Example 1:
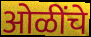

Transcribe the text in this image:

ओळींचे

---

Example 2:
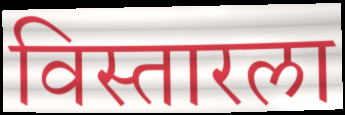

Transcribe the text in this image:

विस्तारला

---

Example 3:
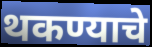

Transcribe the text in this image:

थकण्याचे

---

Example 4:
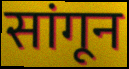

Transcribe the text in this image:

सांगून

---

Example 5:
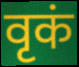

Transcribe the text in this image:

वृकं